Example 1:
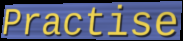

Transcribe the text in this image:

Practise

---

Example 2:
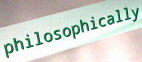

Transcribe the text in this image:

philosophically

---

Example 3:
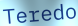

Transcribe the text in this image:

Teredo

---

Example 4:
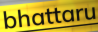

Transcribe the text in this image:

bhattaru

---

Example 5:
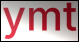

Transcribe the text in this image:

ymt